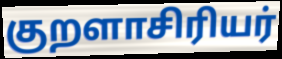
குறளாசிரியர்